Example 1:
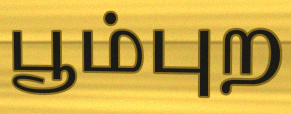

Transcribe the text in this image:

பூம்புற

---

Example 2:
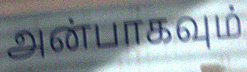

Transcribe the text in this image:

அன்பாகவும்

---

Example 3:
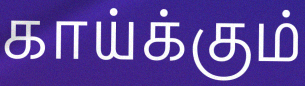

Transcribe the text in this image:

காய்க்கும்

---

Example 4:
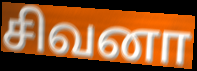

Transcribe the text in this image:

சிவனா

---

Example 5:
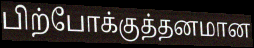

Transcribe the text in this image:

பிற்போக்குத்தனமான